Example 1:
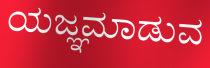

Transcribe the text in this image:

ಯಜ್ಞಮಾಡುವ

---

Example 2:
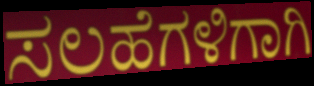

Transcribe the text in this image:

ಸಲಹೆಗಳಿಗಾಗಿ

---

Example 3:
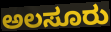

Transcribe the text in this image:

ಅಲಸೂರು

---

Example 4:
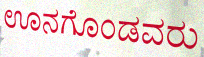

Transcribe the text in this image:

ಊನಗೊಂಡವರು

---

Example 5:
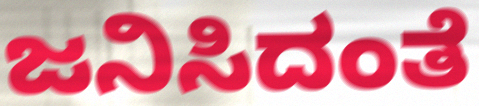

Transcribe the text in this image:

ಜನಿಸಿದಂತೆ